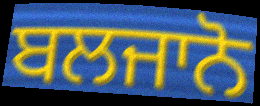
ਬਲਜਾਨੋ